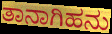
ತಾನಾಗಿಹನು